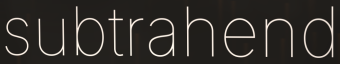
subtrahend